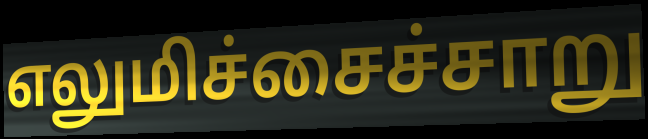
எலுமிச்சைச்சாறு